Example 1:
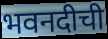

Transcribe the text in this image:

भवनदीची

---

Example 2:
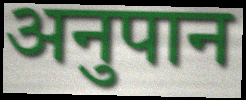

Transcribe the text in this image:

अनुपान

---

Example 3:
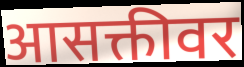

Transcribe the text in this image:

आसक्तीवर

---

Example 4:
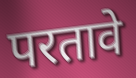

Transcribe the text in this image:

परतावे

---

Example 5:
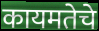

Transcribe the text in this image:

कायमतेचे